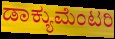
ಡಾಕ್ಯುಮೆಂಟರಿ